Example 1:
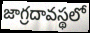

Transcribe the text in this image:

జాగ్రదావస్థలో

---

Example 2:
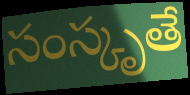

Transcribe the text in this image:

సంస్కృతే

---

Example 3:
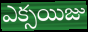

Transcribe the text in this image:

ఎక్సయిజు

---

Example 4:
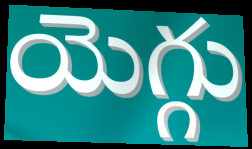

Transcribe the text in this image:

యెగ్గు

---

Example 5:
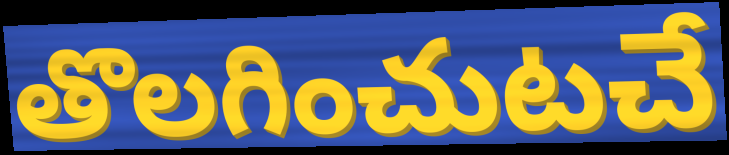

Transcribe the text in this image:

తొలగించుటచే